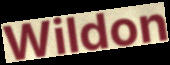
Wildon